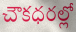
చౌకధరల్లో